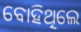
ବୋହିଥିଲେ